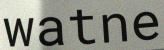
watne